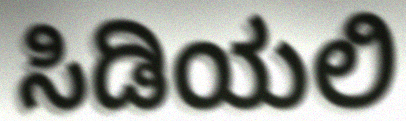
ಸಿಡಿಯಲಿ